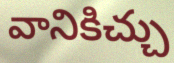
వానికిచ్చు